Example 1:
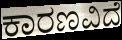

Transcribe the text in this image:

ಕಾರಣವಿದೆ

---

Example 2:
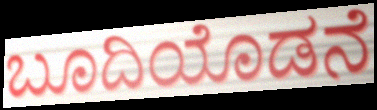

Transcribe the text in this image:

ಬೂದಿಯೊಡನೆ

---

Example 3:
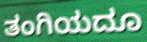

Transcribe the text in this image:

ತಂಗಿಯದೂ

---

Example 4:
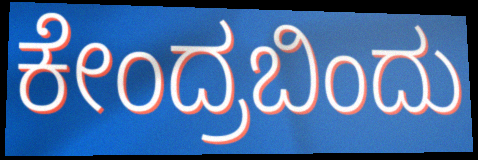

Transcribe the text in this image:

ಕೇಂದ್ರಬಿಂದು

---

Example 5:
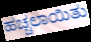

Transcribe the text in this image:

ಹಚ್ಚಲಾಯಿತು